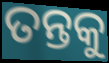
ତନ୍ତକୁ